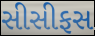
સીસીફસ